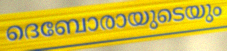
ദെബോരായുടെയും